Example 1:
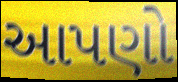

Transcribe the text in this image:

આપણો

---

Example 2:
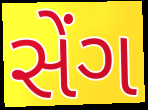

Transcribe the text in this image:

સેંગ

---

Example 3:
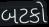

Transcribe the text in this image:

બટકો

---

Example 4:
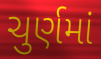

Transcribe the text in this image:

ચુર્ણમાં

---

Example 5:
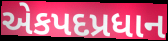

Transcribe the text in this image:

એકપદપ્રધાન